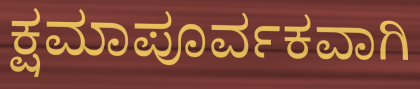
ಕ್ಷಮಾಪೂರ್ವಕವಾಗಿ